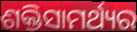
ଶକ୍ତିସାମର୍ଥ୍ୟର